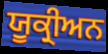
ਯੂਕ੍ਰੀਅਨ